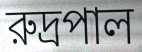
রুদ্রপাল